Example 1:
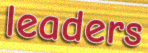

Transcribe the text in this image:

leaders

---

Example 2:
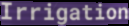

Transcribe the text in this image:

Irrigation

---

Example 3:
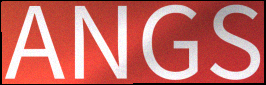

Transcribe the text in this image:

ANGS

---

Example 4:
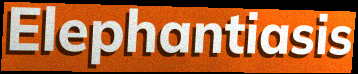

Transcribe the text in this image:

Elephantiasis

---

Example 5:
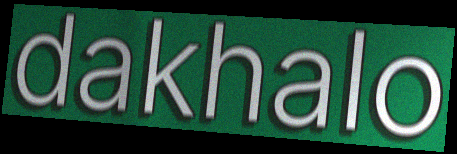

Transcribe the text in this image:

dakhalo